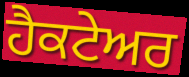
ਹੈਕਟੇਅਰ